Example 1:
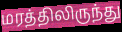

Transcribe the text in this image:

மரத்திலிருந்து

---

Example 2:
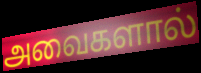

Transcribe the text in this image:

அவைகளால்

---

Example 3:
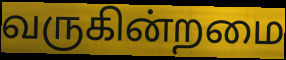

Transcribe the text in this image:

வருகின்றமை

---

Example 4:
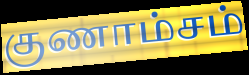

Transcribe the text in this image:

குணாம்சம்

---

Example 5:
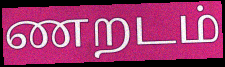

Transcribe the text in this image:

ணறடம்